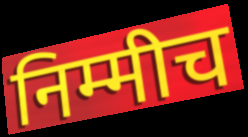
निम्मीच